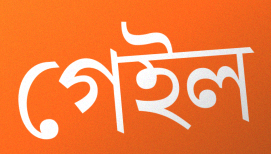
গেইল